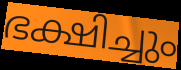
ഭക്ഷിച്ചും